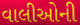
વાલીઓની